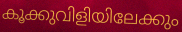
കൂക്കുവിളിയിലേക്കും